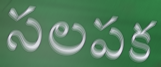
సలపక